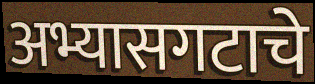
अभ्यासगटाचे